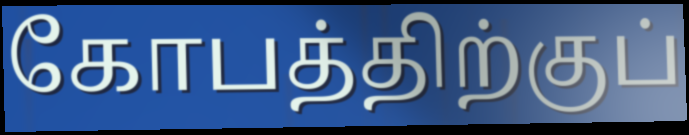
கோபத்திற்குப்